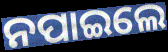
ନପାଇଲେ